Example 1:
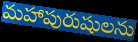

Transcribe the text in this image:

మహాపురుషులను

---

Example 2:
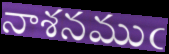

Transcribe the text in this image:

నాశనముఁ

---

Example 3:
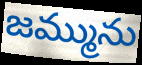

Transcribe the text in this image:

జమ్మును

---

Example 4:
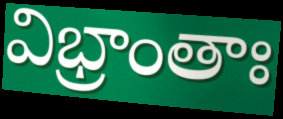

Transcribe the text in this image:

విభ్రాంతాః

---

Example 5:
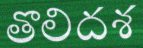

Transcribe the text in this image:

తొలిదశ